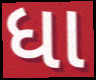
ધા